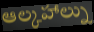
ఆల్కహాల్ను